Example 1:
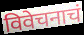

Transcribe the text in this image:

विवेचनाचं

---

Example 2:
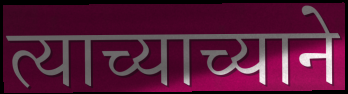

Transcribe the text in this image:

त्याच्याच्याने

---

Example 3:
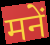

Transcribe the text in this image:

मनें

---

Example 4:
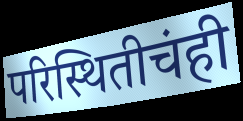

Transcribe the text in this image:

परिस्थितीचंही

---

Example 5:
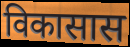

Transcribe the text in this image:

विकासास